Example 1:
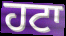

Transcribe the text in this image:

ਹਟਾ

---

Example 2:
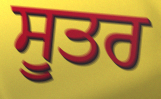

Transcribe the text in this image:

ਸੂਤਰ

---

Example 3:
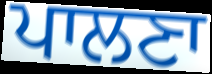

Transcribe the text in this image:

ਪਾਲਣਾ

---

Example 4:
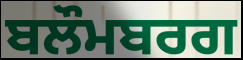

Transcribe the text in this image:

ਬਲੌਮਬਰਗ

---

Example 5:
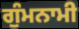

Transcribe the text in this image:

ਗੁੰਮਨਾਮੀ